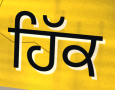
ਹਿੱਕ